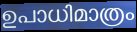
ഉപാധിമാത്രം